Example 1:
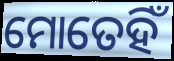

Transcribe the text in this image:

ମୋତେହିଁ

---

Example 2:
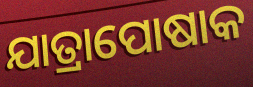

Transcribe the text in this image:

ଯାତ୍ରାପୋଷାକ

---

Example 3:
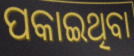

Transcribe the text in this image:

ପକାଇଥିବା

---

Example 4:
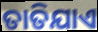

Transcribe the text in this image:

ତାତିଯାଏ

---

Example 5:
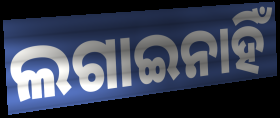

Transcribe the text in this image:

ଲଗାଇନାହିଁ